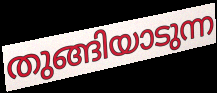
തുങ്ങിയാടുന്ന